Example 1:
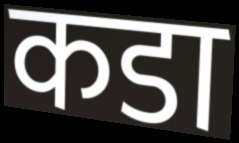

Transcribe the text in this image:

कडा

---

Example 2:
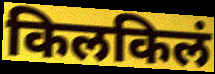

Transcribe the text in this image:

किलकिलं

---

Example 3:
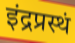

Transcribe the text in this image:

इंद्रप्रस्थं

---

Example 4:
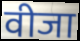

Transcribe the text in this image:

वीजा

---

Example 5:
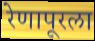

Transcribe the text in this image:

रेणापूरला